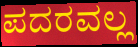
ಪದರವಲ್ಲ